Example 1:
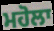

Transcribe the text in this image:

ਮਹੋਲਾ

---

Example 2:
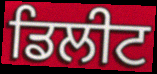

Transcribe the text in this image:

ਡਿਲੀਟ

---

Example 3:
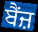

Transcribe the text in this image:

ਬੈਂਜ਼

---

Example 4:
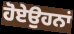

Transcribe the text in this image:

ਹੋਏਉਹਨਾਂ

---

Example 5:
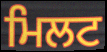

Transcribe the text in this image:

ਮਿਲਟ